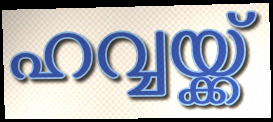
ഹവ്വയ്ക്ക്